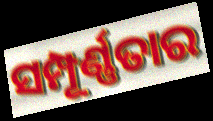
ସମ୍ପୂର୍ଣ୍ଣତାର